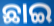
ଛାଇ